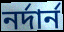
নর্দার্ন